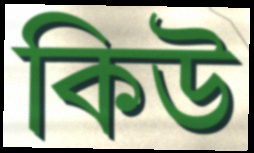
কিউ